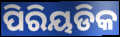
ପିରିୟଡିକ